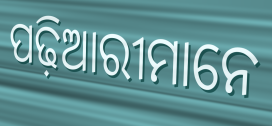
ପଢ଼ିଆରୀମାନେ